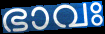
ഭാവഃ